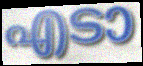
എടാ